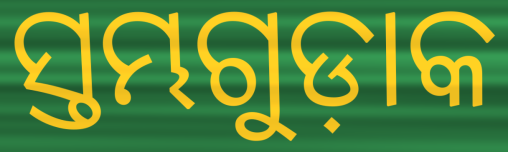
ସ୍ତମ୍ଭଗୁଡ଼ାକ